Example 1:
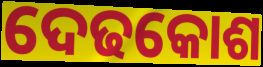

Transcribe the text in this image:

ଦେଢକୋଶ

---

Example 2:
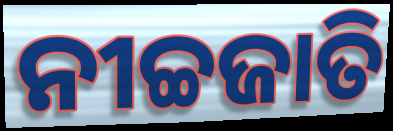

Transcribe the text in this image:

ନୀଚ୍ଚଜାତି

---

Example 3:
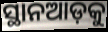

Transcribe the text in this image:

ସ୍ଥାନଆଡ଼କୁ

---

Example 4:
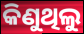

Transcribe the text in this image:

କିଣୁଥିଲୁ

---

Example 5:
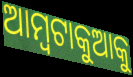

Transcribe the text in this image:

ଆମ୍ବଟାକୁଆକୁ